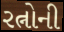
રત્નોની